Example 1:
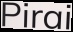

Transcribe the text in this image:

Pirai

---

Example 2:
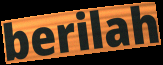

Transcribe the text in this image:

berilah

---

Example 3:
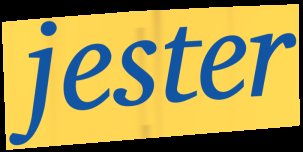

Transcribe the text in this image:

jester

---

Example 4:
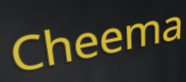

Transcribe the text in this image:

Cheema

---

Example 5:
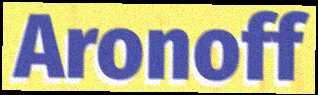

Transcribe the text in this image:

Aronoff